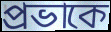
প্রভাকে